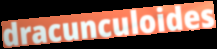
dracunculoides